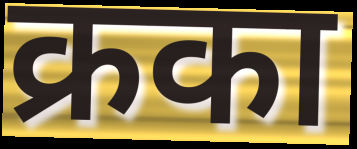
क्रका